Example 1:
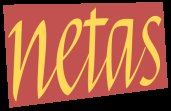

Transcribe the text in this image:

netas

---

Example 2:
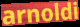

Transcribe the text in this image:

arnoldi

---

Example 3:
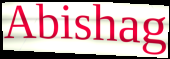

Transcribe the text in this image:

Abishag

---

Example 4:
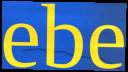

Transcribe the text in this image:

ebe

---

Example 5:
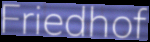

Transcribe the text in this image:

Friedhof